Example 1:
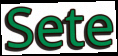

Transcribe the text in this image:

Sete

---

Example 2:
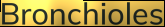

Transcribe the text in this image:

Bronchioles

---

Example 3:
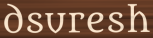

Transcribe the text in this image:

dsuresh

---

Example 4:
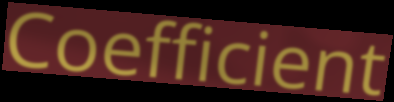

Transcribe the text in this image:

Coefficient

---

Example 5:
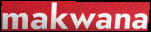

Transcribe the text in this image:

makwana